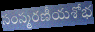
సంస్మరణీయశోభ